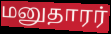
மனுதாரர்